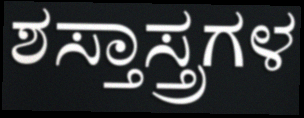
ಶಸ್ತಾಸ್ತ್ರಗಳ